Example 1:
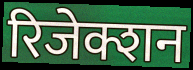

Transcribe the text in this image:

रिजेक्शन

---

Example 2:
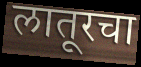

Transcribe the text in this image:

लातूरचा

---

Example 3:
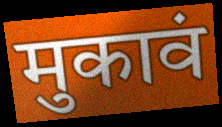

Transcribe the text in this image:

मुकावं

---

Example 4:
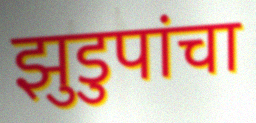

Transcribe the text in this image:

झुडुपांचा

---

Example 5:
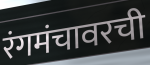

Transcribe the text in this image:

रंगमंचावरची